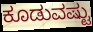
ಕೂಡುವಷ್ಟು